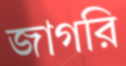
জাগরি